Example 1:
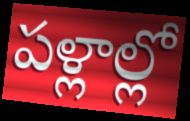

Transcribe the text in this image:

పళ్లాల్లో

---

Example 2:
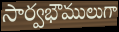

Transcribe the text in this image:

సార్వభౌములుగా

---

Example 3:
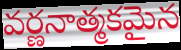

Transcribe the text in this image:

వర్ణనాత్మకమైన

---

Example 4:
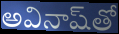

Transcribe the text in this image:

అవినాష్‌తో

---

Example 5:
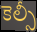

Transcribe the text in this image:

కెల్సీ